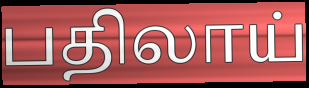
பதிலாய்